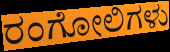
ರಂಗೋಲಿಗಳು